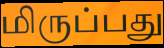
மிருப்பது